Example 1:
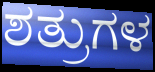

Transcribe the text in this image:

ಶತ್ರುಗಳ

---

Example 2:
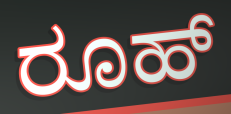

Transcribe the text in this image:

ರೂಹ್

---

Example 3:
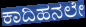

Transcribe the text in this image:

ಕಾದಿಹನಲೇ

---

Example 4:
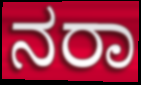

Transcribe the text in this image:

ನರಾ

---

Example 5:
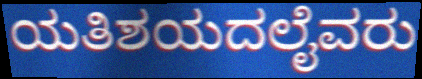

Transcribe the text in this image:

ಯತಿಶಯದಲೈವರು